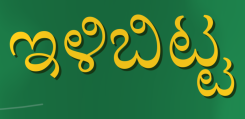
ಇಳಿಬಿಟ್ಟ